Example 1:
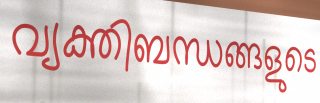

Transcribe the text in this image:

വ്യക്തിബന്ധങ്ങളുടെ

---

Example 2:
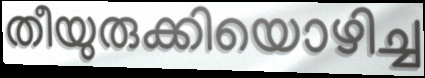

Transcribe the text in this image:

തീയുരുക്കിയൊഴിച്ച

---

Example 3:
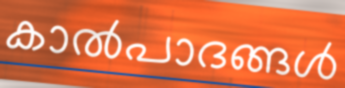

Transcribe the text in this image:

കാൽപാദങ്ങൾ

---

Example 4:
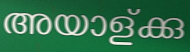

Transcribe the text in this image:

അയാള്ക്കു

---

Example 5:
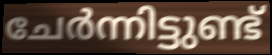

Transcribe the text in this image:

ചേർന്നിട്ടുണ്ട്